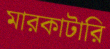
মারকাটারি